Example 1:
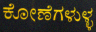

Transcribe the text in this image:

ಕೋಣೆಗಳುಳ್ಳ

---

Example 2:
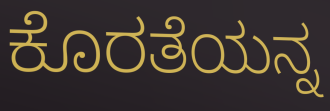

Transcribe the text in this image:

ಕೊರತೆಯನ್ನ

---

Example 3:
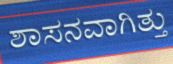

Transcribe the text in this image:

ಶಾಸನವಾಗಿತ್ತು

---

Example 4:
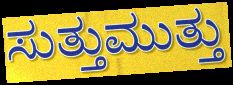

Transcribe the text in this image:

ಸುತ್ತುಮುತ್ತು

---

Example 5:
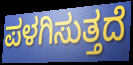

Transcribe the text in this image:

ಪಳಗಿಸುತ್ತದೆ